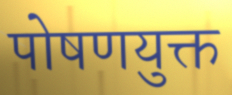
पोषणयुक्त